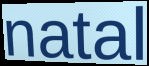
natal